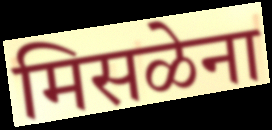
मिसळेना